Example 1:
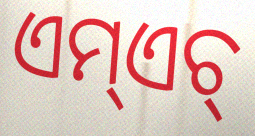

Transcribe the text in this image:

ଏମ୍ଏଚ୍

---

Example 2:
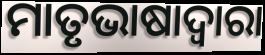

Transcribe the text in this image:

ମାତୃଭାଷାଦ୍ୱାରା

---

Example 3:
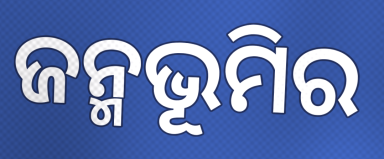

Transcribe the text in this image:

ଜନ୍ମଭୂମିର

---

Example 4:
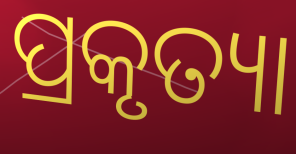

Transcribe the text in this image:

ପ୍ରକୃତ୍ୟା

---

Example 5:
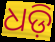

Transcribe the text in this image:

ଧଡ଼ି